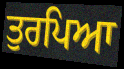
ਤੁਰਪਿਆ